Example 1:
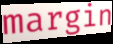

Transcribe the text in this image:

margin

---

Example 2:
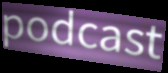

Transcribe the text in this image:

podcast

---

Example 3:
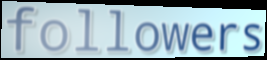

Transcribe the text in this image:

followers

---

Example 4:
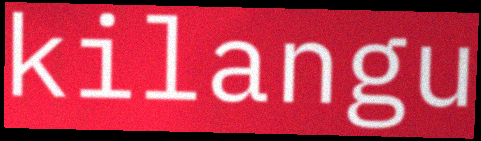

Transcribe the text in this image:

kilangu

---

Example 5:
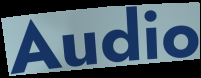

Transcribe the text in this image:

Audio